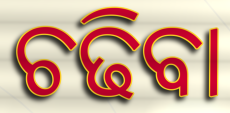
ଚଢିବା